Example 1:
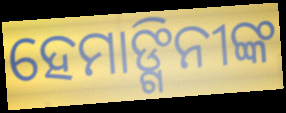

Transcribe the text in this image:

ହେମାଙ୍ଗିନୀଙ୍କ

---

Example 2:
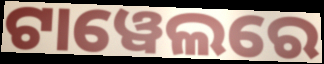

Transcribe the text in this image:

ଟାୱେଲରେ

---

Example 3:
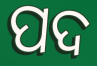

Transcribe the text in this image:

ପଦ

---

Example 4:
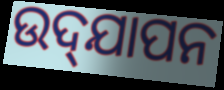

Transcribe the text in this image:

ଉଦ୍‌ଯାପନ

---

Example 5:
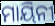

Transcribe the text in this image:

ମାୟିନୀ